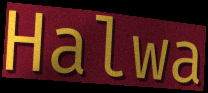
Halwa